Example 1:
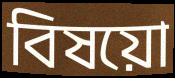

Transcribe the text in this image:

বিষয়ো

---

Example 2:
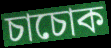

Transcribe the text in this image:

চাচোক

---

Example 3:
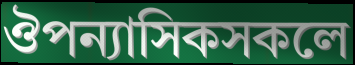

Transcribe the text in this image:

ঔপন্যাসিকসকলে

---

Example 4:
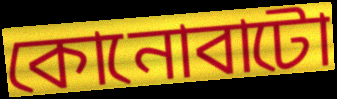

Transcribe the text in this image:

কোনোবাটো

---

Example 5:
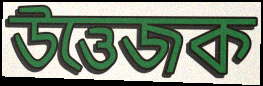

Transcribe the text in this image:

উত্তেজক